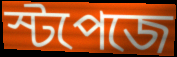
স্টপেজে